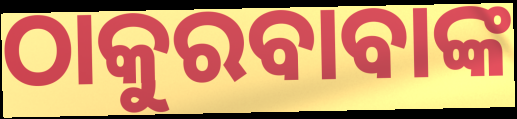
ଠାକୁରବାବାଙ୍କ